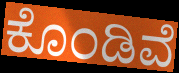
ಕೊಂಡಿವೆ